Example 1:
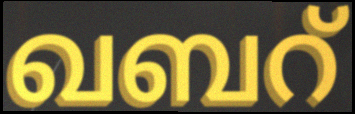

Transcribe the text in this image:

ഖബറ്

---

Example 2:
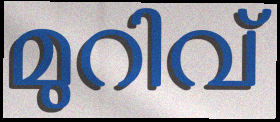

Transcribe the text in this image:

മുറിവ്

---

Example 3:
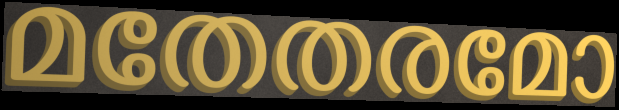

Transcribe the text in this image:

മതേതരമോ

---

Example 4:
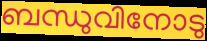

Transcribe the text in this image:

ബന്ധുവിനോടു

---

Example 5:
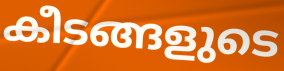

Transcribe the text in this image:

കീടങ്ങളുടെ